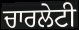
ਚਾਰਲੇਟੀ